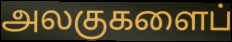
அலகுகளைப்